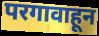
परगावाहून